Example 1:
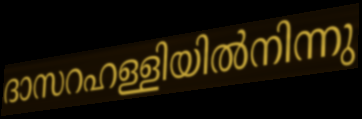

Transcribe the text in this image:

ദാസറഹള്ളിയിൽനിന്നു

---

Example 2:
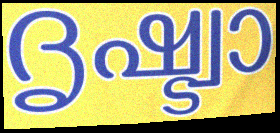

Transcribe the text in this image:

ദൃഷ്ട്വാ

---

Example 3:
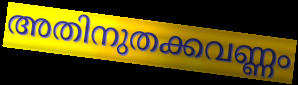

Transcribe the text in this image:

അതിനുതക്കവണ്ണം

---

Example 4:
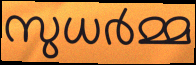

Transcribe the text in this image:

സുധർമ്മ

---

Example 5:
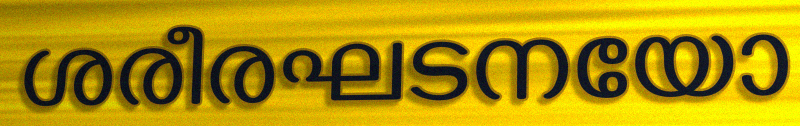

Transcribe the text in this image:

ശരീരഘടനയോ